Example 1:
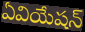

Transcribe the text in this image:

ఏవియేషన్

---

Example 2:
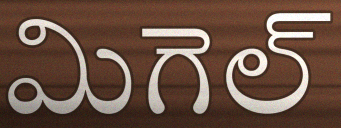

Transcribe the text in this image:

మిగెల్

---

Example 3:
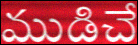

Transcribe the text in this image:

ముడిచే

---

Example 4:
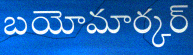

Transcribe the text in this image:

బయోమార్కర్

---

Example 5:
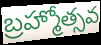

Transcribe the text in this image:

బ్రహ్మోత్సవ